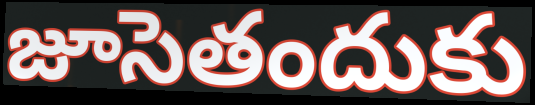
జూసెతందుకు